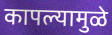
कापल्यामुळे